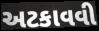
અટકાવવી